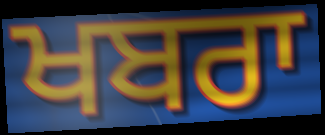
ਖਬਰਾ